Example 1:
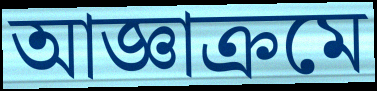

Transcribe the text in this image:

আজ্ঞাক্রমে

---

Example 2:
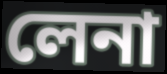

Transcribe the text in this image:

লেনা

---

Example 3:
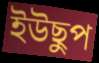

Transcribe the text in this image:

ইউছুপ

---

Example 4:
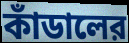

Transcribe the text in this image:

কাঁডালের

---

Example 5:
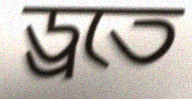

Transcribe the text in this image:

ড্রতে